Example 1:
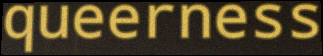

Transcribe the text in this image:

queerness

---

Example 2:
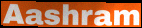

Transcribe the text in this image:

Aashram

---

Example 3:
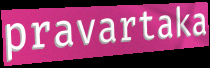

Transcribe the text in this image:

pravartaka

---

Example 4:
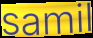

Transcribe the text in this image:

samil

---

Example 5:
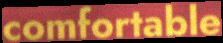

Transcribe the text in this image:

comfortable